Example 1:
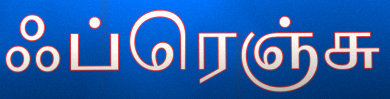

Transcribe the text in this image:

ஃப்ரெஞ்சு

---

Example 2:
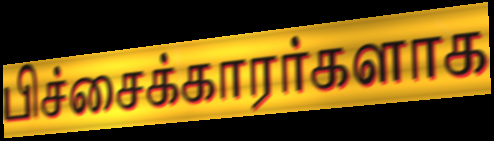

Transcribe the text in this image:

பிச்சைக்காரர்களாக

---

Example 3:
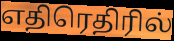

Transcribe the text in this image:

எதிரெதிரில்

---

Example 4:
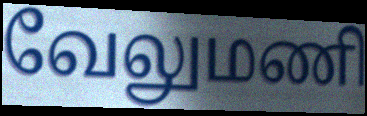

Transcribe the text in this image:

வேலுமணி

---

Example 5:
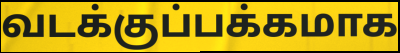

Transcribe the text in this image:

வடக்குப்பக்கமாக